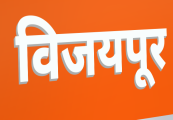
विजयपूर